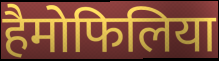
हैमोफिलिया